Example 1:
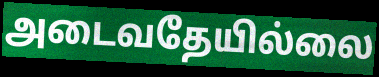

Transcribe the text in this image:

அடைவதேயில்லை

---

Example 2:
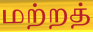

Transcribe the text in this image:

மற்றத்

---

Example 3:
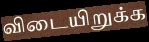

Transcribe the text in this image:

விடையிறுக்க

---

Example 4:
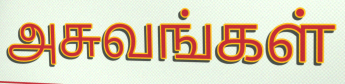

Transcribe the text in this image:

அசுவங்கள்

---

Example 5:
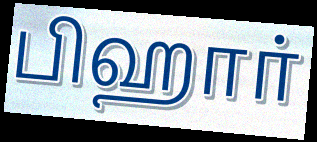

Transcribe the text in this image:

பிஹார்